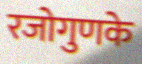
रजोगुणके